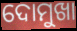
ଦୋମୁଖା